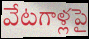
వేటగాళ్లపై